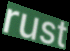
rust